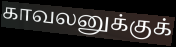
காவலனுக்குக்